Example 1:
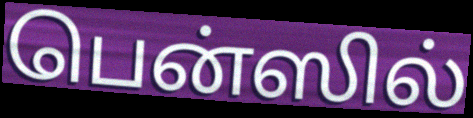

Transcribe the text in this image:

பென்ஸில்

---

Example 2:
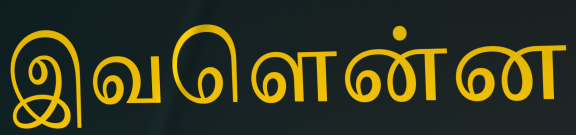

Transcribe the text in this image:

இவளென்ன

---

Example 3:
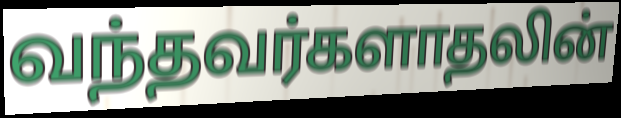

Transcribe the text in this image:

வந்தவர்களாதலின்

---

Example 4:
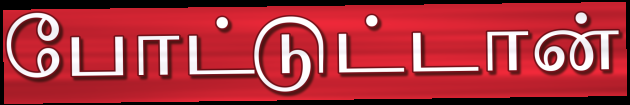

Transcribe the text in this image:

போட்டுட்டான்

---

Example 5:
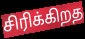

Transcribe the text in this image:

சிரிக்கிறத